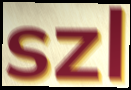
szl